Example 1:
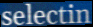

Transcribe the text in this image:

selectin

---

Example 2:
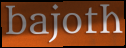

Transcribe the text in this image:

bajoth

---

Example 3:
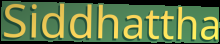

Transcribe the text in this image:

Siddhattha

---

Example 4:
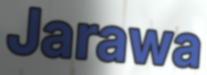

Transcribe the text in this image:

Jarawa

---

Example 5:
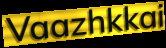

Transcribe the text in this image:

Vaazhkkai